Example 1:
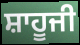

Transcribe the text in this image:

ਸ਼ਾਹੂਜੀ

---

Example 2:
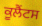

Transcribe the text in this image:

ਕੂਲੈਂਟਸ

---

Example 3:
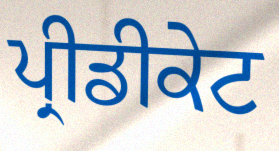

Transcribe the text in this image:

ਪ੍ਰੀਡੀਕੇਟ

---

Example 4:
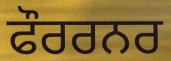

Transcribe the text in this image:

ਫੌਰਰਨਰ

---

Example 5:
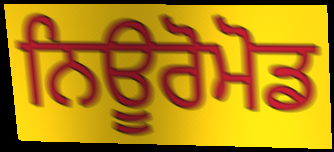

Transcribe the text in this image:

ਨਿਊਰੋਮੋਡ